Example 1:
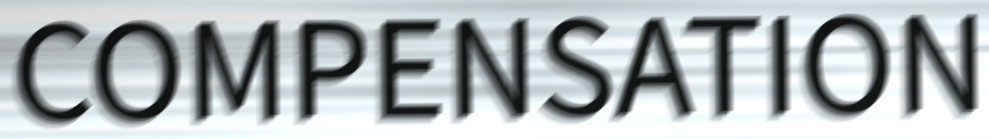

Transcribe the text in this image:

COMPENSATION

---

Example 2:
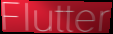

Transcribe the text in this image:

Flutter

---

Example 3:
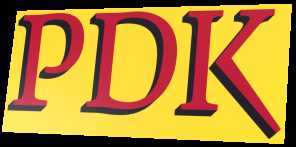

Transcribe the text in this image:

PDK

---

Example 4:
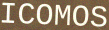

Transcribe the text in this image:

ICOMOS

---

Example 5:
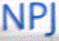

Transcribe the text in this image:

NPJ